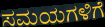
ಸಮಯಗಳಿಗೆ